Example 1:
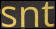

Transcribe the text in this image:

snt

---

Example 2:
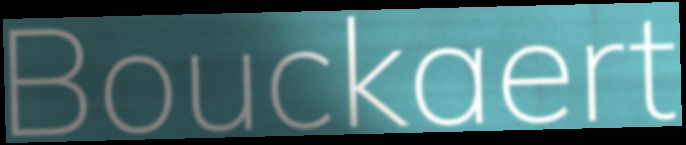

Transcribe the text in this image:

Bouckaert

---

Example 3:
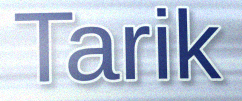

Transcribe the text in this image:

Tarik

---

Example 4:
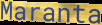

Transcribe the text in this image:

Maranta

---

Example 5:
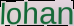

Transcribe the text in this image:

lohan